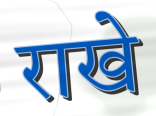
राखे